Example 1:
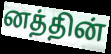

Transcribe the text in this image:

னத்தின்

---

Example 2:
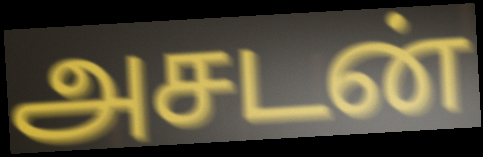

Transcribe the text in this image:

அசடன்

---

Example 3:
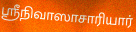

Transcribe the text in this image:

ஸ்ரீநிவாஸாசாரியார்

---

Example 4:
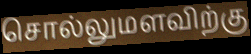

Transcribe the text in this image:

சொல்லுமளவிற்கு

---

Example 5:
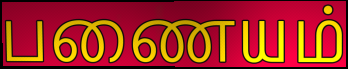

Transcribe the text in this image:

பணையம்